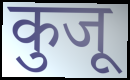
कुजू